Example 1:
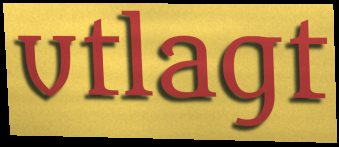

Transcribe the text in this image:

utlagt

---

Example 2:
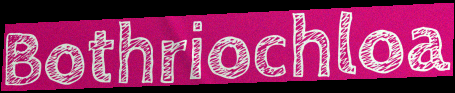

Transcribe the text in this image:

Bothriochloa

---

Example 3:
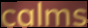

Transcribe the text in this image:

calms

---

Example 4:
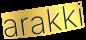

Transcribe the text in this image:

arakki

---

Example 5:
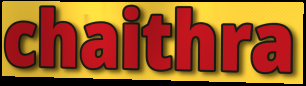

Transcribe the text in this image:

chaithra